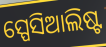
ସ୍ପେସିଆଲିଷ୍ଟ